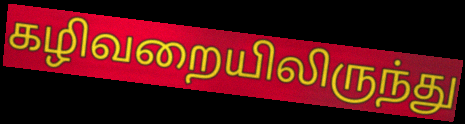
கழிவறையிலிருந்து